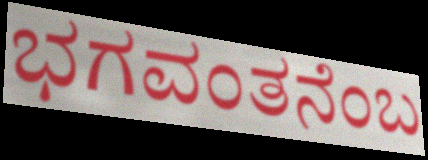
ಭಗವಂತನೆಂಬ